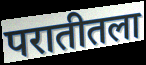
परातीतला